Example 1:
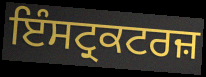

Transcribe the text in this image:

ਇੰਸਟ੍ਰਕਟਰਜ਼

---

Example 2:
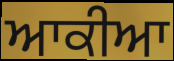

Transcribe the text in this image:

ਆਕੀਆ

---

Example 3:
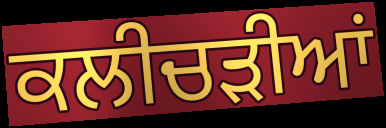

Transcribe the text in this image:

ਕਲੀਚੜੀਆਂ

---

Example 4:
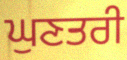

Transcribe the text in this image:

ਘੁਣਤਰੀ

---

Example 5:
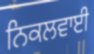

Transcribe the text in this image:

ਨਿਕਲਵਾਈ